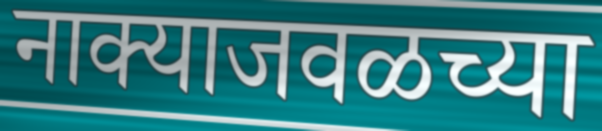
नाक्याजवळच्या